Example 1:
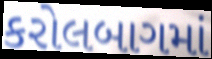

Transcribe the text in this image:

કરોલબાગમાં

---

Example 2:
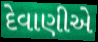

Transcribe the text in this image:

દેવાણીએ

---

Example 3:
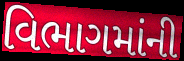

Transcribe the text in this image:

વિભાગમાંની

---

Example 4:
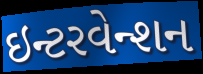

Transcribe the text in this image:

ઇન્ટરવેન્શન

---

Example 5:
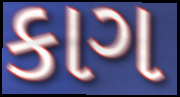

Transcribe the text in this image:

કાગ